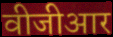
वीजीआर